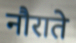
नौराते